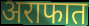
अराफात